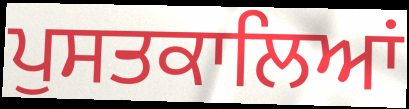
ਪੁਸਤਕਾਲਿਆਂ